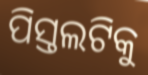
ପିସ୍ତଲଟିକୁ